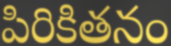
పిరికితనం